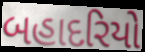
બહાદરિયો